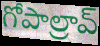
గోపాల్రావ్